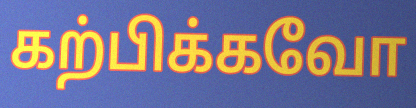
கற்பிக்கவோ